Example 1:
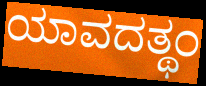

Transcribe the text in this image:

ಯಾವದತ್ಥಂ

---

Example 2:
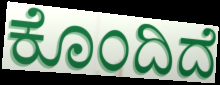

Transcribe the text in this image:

ಕೊಂದಿದೆ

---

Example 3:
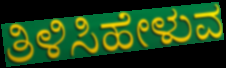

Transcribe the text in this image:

ತಿಳಿಸಿಹೇಳುವ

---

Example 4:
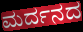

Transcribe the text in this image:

ಮರ್ದನದ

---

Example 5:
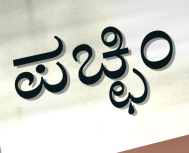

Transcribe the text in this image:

ಪಚ್ಛಿಂ